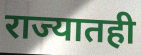
राज्यातही